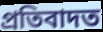
প্ৰতিবাদত